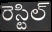
రెస్టిల్